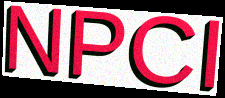
NPCI